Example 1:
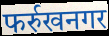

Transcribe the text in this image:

फर्रुखनगर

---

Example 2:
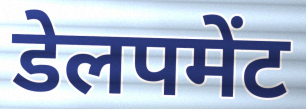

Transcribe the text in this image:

डेलपमेंट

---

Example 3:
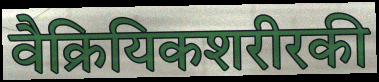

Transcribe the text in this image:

वैक्रियिकशरीरकी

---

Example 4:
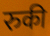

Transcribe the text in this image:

रुकी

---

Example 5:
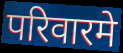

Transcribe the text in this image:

परिवारमे